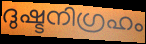
ദുഷ്ടനിഗ്രഹം